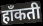
हाँकती